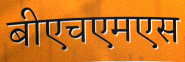
बीएचएमएस